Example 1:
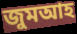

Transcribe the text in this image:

জুমআহ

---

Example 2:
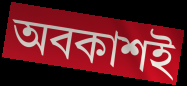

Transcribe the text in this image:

অবকাশই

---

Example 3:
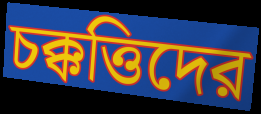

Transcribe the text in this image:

চক্কত্তিদের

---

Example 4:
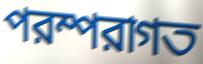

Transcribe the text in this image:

পরম্পরাগত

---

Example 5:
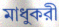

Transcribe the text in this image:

মাধুকরী